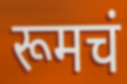
रूमचं